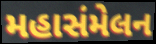
મહાસંમેલન